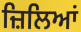
ਜ਼ਿਲਿਆਂ